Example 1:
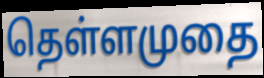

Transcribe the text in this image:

தெள்ளமுதை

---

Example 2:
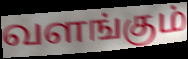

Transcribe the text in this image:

வளங்கும்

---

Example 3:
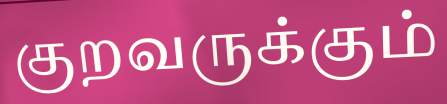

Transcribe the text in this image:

குறவருக்கும்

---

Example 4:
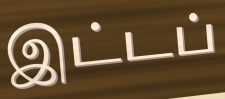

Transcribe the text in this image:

இட்டப்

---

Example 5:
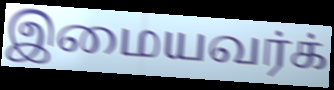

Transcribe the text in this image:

இமையவர்க்